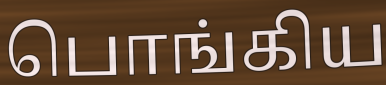
பொங்கிய